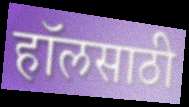
हॉलसाठी